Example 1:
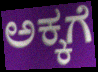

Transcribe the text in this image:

ಅಕ್ಕಗೆ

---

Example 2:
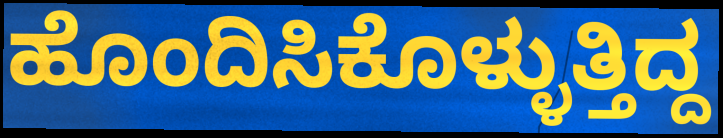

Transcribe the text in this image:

ಹೊಂದಿಸಿಕೊಳ್ಳುತ್ತಿದ್ದ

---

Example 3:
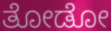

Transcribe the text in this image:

ತೋಡೋ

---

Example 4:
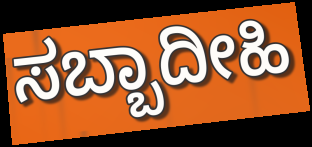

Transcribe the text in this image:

ಸಬ್ಬಾದೀಹಿ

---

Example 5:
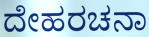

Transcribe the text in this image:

ದೇಹರಚನಾ